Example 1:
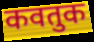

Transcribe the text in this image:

कवतुक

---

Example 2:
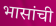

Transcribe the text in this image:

भासांची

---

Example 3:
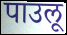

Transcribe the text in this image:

पाउलू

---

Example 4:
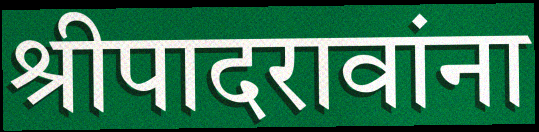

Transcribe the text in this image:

श्रीपादरावांना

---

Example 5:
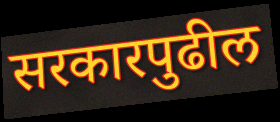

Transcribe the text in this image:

सरकारपुढील